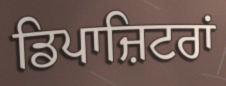
ਡਿਪਾਜ਼ਿਟਰਾਂ